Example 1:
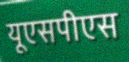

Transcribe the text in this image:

यूएसपीएस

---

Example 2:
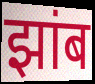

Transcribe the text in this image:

झांब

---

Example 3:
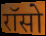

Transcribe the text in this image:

रॉसो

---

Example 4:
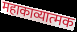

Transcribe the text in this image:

महाकाव्‍यात्‍मक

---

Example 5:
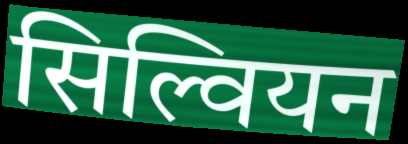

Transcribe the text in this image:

सिल्वियन